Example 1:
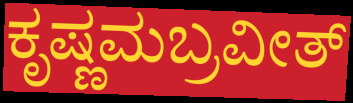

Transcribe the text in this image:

ಕೃಷ್ಣಮಬ್ರವೀತ್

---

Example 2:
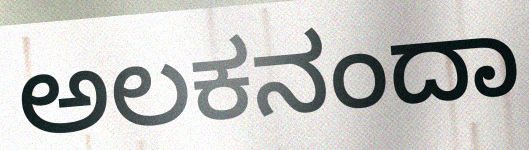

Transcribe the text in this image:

ಅಲಕನಂದಾ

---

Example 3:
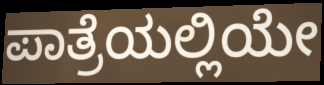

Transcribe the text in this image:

ಪಾತ್ರೆಯಲ್ಲಿಯೇ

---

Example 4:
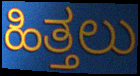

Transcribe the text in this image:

ಹಿತ್ತಲು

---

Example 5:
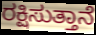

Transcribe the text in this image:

ರಕ್ಷಿಸುತ್ತಾನೆ